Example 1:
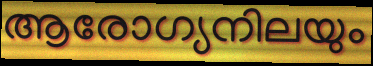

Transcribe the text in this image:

ആരോഗ്യനിലയും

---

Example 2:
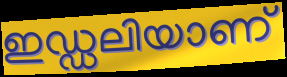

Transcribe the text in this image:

ഇഡ്ഡലിയാണ്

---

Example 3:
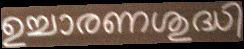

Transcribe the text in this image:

ഉച്ചാരണശുദ്ധി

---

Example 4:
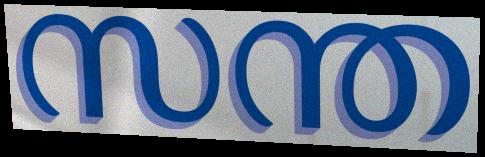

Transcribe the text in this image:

സന്ത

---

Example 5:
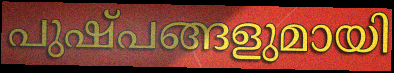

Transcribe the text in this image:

പുഷ്പങ്ങളുമായി